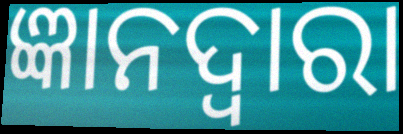
ଜ୍ଞାନଦ୍ଵାରା